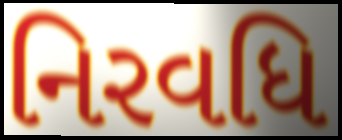
નિરવધિ